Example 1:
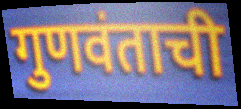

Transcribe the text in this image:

गुणवंताची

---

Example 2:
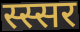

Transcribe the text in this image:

स्स्सर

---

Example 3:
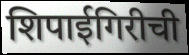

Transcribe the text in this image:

शिपाईगिरीची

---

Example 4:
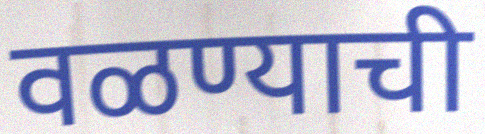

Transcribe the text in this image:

वळण्याची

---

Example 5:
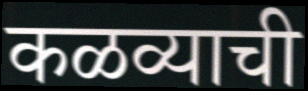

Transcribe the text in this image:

कळव्याची